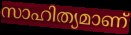
സാഹിത്യമാണ്